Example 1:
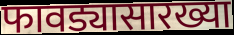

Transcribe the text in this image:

फावड्यासारख्या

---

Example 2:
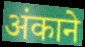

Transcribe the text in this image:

अंकाने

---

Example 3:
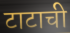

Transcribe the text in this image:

टाटाची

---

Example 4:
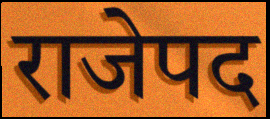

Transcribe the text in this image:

राजेपद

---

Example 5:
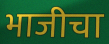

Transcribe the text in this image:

भाजीचा